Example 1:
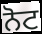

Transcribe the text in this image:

ਨੋਟ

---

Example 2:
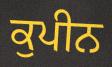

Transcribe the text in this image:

ਕੁਪੀਨ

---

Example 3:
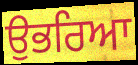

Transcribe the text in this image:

ਉਭਰਿਆ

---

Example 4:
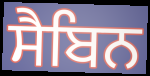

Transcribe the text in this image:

ਸੈਬਿਨ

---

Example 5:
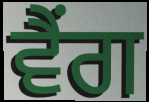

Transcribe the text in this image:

ਵੈਂਗ